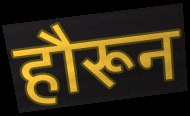
हौरून